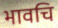
भावचि